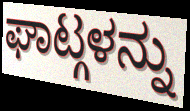
ಘಾಟ್ಗಳನ್ನು